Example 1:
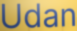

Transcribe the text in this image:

Udan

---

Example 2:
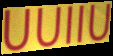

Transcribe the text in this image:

UUIIU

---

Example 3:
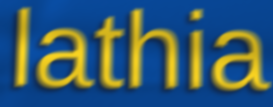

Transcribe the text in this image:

lathia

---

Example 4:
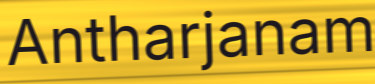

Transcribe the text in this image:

Antharjanam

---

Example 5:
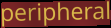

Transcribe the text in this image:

peripheral